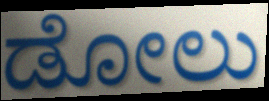
ಡೋಲು